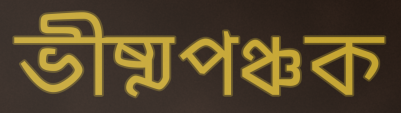
ভীষ্মপঞ্চক